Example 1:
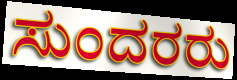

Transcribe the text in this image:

ಸುಂದರರು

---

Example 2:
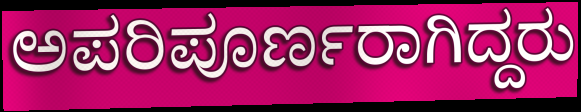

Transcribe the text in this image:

ಅಪರಿಪೂರ್ಣರಾಗಿದ್ದರು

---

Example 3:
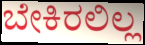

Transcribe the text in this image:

ಬೇಕಿರಲಿಲ್ಲ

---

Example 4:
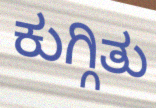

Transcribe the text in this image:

ಕುಗ್ಗಿತು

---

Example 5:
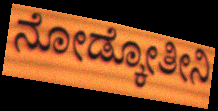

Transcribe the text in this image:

ನೋಡ್ಕೋತೀನಿ